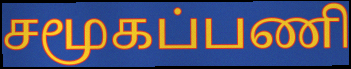
சமூகப்பணி